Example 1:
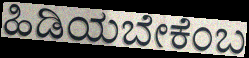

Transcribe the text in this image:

ಹಿಡಿಯಬೇಕೆಂಬ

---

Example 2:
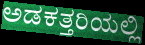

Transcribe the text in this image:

ಅಡಕತ್ತರಿಯಲ್ಲಿ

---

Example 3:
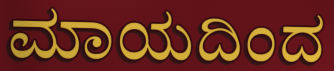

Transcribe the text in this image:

ಮಾಯದಿಂದ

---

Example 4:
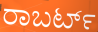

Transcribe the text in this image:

ರಾಬರ್ಟ್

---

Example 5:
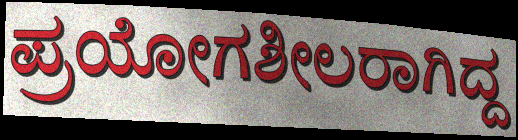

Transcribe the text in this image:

ಪ್ರಯೋಗಶೀಲರಾಗಿದ್ದ